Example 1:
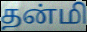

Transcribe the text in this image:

தன்மி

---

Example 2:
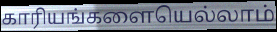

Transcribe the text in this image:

காரியங்களையெல்லாம்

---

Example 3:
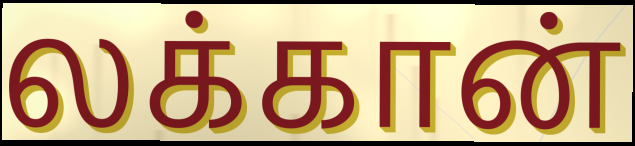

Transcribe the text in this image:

லக்கான்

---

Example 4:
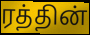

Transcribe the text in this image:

ரத்தின்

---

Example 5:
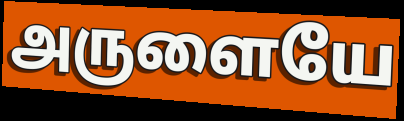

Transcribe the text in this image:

அருளையே